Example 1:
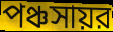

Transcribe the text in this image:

পঞ্চসায়র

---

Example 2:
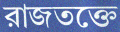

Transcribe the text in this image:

রাজতক্তে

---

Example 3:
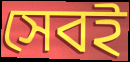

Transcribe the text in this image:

সেবই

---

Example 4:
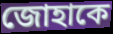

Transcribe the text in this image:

জোহাকে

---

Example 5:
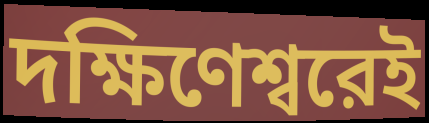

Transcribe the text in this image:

দক্ষিণেশ্বরেই